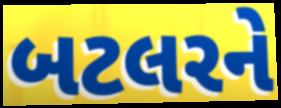
બટલરને